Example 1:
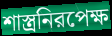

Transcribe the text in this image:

শাস্ত্রনিরপেক্ষ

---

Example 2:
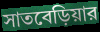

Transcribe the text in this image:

সাতবেড়িয়ার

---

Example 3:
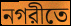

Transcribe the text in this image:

নগরীতে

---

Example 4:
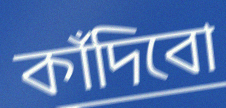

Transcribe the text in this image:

কাঁদিবো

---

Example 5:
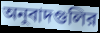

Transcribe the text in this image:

অনুবাদগুলির